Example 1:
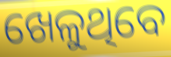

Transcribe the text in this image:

ଖେଳୁଥିବେ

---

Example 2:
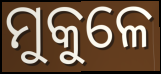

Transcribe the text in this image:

ମୁକୁଳେ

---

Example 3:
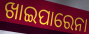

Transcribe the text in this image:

ଖାଇପାରେନା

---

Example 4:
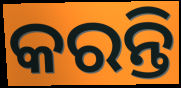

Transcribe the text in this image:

କରନ୍ତି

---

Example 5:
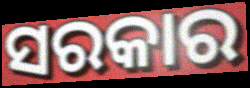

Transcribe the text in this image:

ସରକାର